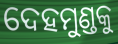
ଦେହମୁଣ୍ଡକୁ